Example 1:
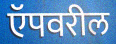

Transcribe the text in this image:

ऍपवरील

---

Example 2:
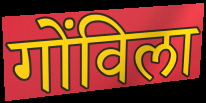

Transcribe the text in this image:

गोंविला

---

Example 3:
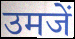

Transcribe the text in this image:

उमजें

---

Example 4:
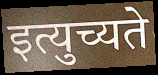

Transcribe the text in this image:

इत्युच्यते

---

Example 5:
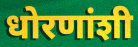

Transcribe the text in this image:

धोरणांशी